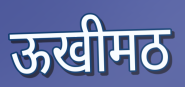
ऊखीमठ